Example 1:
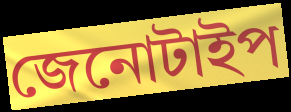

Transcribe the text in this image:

জেনোটাইপ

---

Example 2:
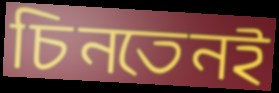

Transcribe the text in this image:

চিনতেনই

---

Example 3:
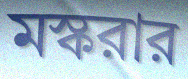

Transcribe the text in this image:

মস্করার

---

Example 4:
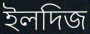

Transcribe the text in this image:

ইলদিজ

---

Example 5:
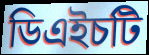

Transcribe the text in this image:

ডিএইচটি